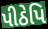
પીઠેપિ